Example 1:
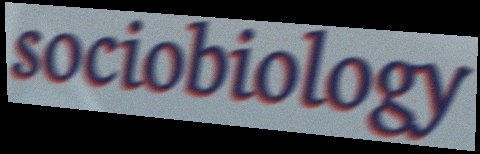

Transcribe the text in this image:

sociobiology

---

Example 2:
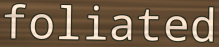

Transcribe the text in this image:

foliated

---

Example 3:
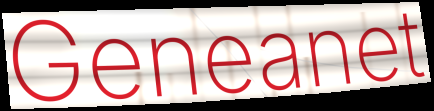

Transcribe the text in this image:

Geneanet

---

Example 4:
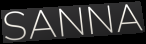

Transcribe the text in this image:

SANNA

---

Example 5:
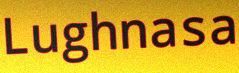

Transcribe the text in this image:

Lughnasa